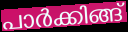
പാർക്കിങ്ങ്